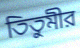
তিতুমীর